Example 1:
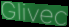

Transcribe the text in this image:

Glivec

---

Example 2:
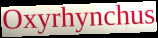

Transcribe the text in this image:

Oxyrhynchus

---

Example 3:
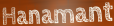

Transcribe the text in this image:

Hanamant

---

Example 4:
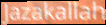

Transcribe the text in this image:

Jazakallah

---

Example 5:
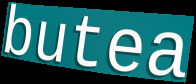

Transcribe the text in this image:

butea